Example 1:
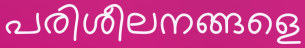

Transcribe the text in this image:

പരിശീലനങ്ങളെ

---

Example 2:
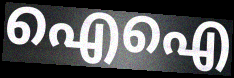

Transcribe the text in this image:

ഐഐ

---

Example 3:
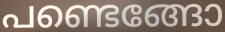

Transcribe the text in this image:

പണ്ടെങ്ങോ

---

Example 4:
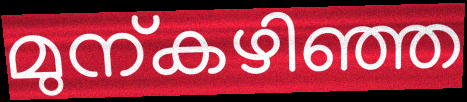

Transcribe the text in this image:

മുന്കഴിഞ്ഞ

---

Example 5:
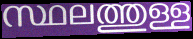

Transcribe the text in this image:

സ്ഥലത്തുള്ള